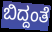
ಬಿದ್ದಂತೆ